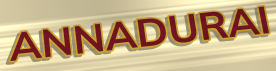
ANNADURAI